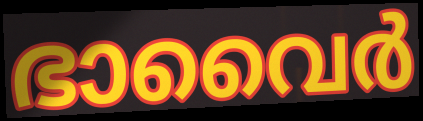
ഭാവൈർ